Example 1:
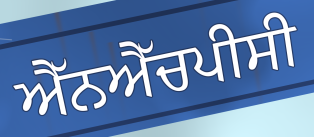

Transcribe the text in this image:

ਐੱਨਐੱਚਪੀਸੀ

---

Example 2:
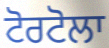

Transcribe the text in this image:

ਟੋਰਟੋਲਾ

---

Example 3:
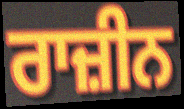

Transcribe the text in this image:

ਰਾਜ਼ੀਨ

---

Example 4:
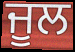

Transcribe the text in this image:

ਜੂਲ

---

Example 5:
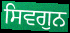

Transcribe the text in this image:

ਸਿਵਗੁਨ